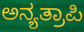
ಅನ್ಯತ್ರಾಪಿ